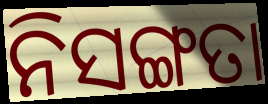
ନିସଙ୍ଗତା